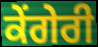
ਕੇਂਗੇਰੀ